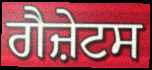
ਗੈਜ਼ੇਟਸ